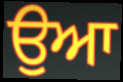
ਉਆ